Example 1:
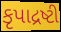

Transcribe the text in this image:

કૃપાદ્રષ્ટી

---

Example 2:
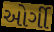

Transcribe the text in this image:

ઓર્ગી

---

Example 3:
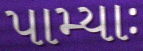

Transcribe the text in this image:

પામ્યાઃ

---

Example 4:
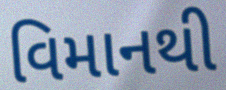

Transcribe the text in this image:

વિમાનથી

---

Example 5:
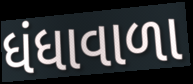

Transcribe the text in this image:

ધંધાવાળા